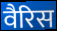
वैरिस